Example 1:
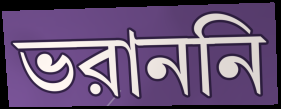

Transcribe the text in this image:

ভরাননি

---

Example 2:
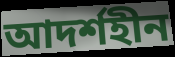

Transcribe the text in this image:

আদর্শহীন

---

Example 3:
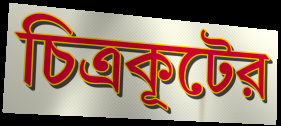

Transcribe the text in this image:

চিত্রকূটের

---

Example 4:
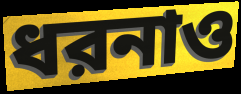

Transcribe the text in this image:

ধরনাও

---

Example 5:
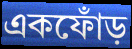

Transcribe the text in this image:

একফোঁড়